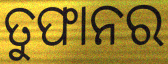
ତୁଫାନର